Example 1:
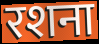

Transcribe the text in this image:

रशना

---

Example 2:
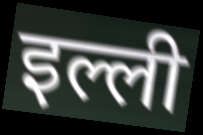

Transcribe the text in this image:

इल्ली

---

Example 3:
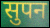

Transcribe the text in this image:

सुपन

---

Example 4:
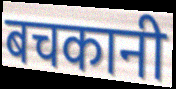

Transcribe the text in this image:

बचकानी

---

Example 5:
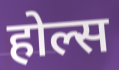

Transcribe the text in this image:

होल्स